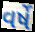
વર્ષે